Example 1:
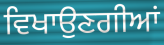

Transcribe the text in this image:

ਵਿਖਾਉਣਗੀਆਂ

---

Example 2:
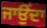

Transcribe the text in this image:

ਜਾਉਂਦਾ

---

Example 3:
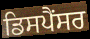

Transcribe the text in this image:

ਡਿਸਪੈਂਸਰ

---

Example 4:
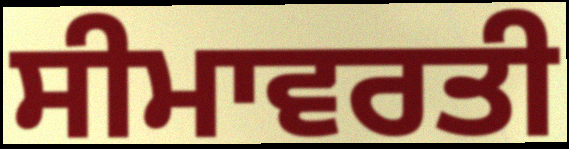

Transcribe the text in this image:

ਸੀਮਾਵਰਤੀ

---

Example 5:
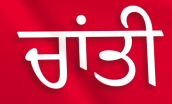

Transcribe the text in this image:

ਚਾਂਤੀ